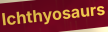
Ichthyosaurs